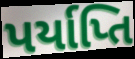
પર્યાપ્તિ